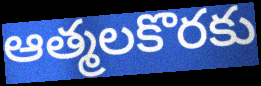
ఆత్మలకొరకు